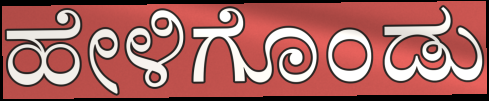
ಹೇಳಿಗೊಂಡು